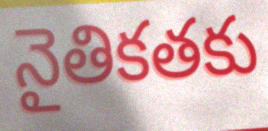
నైతికతకు